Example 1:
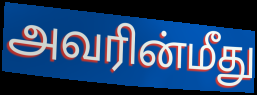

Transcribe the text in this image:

அவரின்மீது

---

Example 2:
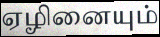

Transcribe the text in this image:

ஏழினையும்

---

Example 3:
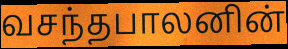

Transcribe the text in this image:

வசந்தபாலனின்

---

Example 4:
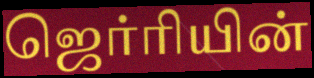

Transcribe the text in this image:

ஜெர்ரியின்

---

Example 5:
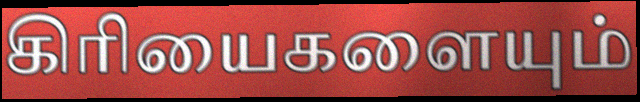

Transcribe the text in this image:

கிரியைகளையும்